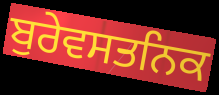
ਬੁਰੇਵਸਤਨਿਕ